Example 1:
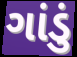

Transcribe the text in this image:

ગાંડું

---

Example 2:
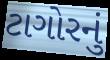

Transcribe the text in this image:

ટાગોરનું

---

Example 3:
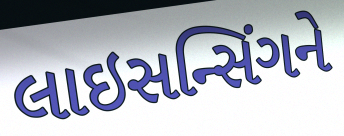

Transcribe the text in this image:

લાઇસન્સિંગને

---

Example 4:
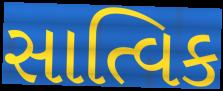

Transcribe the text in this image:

સાત્વિક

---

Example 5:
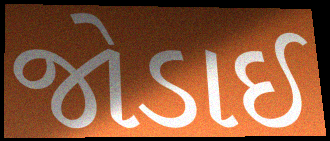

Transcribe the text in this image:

જોડાઈ